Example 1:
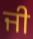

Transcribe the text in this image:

ਜੀ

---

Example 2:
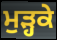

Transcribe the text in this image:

ਮੁੜ੍ਹਕੇ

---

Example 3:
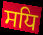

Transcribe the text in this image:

ਸਧਿ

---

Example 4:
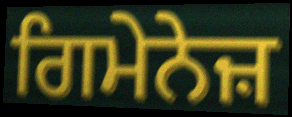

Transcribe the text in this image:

ਗਿਮੇਨੇਜ਼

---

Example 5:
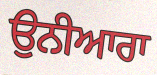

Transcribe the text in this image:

ਉਨੀਆਰਾ